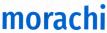
morachi